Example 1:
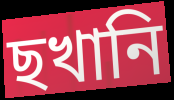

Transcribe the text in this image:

ছখানি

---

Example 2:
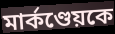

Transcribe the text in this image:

মার্কণ্ডেয়কে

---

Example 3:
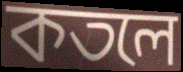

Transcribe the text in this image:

কতলে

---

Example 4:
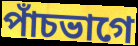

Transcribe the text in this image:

পাঁচভাগে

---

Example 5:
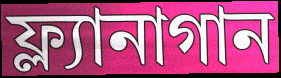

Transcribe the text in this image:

ফ্ল্যানাগান